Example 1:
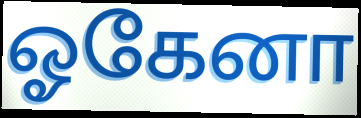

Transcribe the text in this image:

ஓகேனா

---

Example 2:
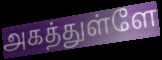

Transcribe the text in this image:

அகத்துள்ளே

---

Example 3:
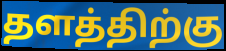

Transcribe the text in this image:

தளத்திற்கு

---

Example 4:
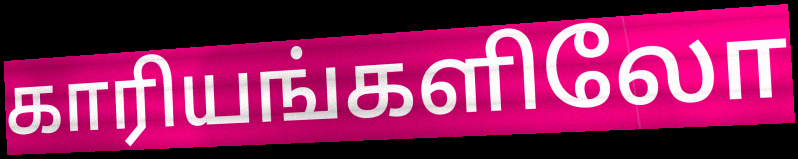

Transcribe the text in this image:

காரியங்களிலோ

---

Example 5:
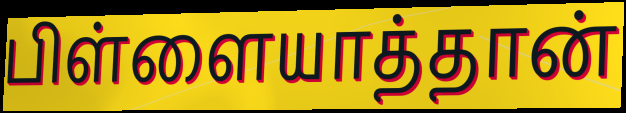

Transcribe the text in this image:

பிள்ளையாத்தான்